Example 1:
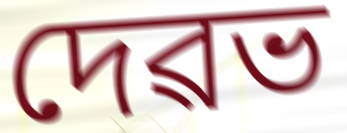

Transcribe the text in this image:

দেৱভ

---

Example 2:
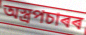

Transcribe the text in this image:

অস্ত্ৰপচাৰৰ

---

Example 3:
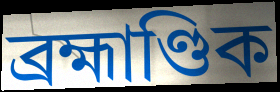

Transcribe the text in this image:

ব্ৰহ্মাণ্ডিক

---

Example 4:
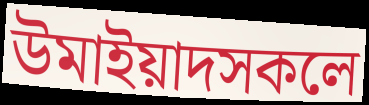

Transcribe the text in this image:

উমাইয়াদসকলে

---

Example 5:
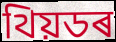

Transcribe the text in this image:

থিয়ডৰ